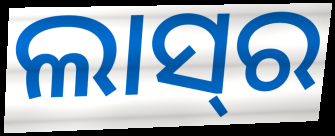
ଲାସ୍‍ର